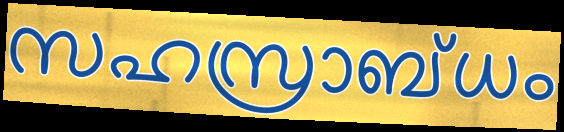
സഹസ്രാബ്ധം